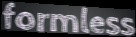
formless